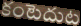
కంటెదుట